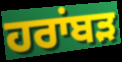
ਹਰਾਂਬੜ